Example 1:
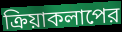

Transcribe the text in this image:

ক্রিয়াকলাপের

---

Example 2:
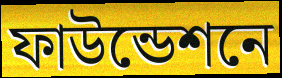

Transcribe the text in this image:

ফাউন্ডেশনে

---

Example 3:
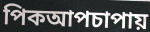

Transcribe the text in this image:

পিকআপচাপায়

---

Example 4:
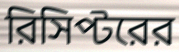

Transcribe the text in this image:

রিসিপ্টরের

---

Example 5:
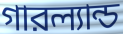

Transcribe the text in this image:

গারল্যান্ড